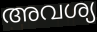
അവശ്യ